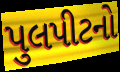
પુલપીટનો